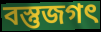
বস্তুজগৎ